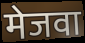
मेजवा